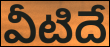
వీటిదే